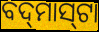
ବଦ୍‌ମାସ୍‌ଟା